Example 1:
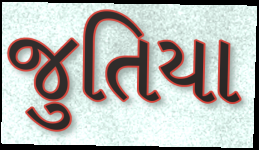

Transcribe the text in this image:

જુતિયા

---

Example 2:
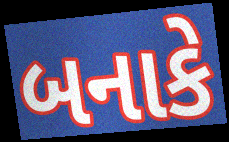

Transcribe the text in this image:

બનાકે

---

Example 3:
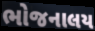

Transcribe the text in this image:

ભોજનાલય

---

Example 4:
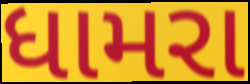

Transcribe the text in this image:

ધામરા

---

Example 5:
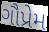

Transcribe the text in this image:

ગૌપ્રેમ